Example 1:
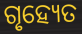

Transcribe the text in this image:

ଗୃହ୍ଯେତ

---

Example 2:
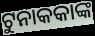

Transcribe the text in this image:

ଟୁନାକକାଙ୍କ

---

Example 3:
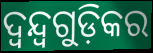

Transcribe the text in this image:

ଦ୍ୱନ୍ଦ୍ୱଗୁଡ଼ିକର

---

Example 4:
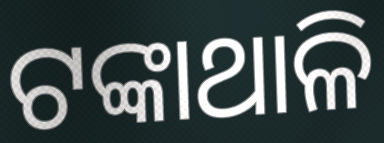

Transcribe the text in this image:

ଟଙ୍କାଥାଳି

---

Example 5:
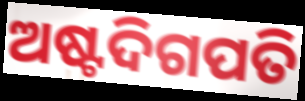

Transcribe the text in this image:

ଅଷ୍ଟଦିଗପତି